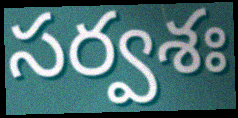
సర్వశః